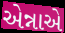
એન્નાએ